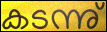
കടന്നു്